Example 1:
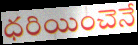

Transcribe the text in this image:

ధరియించెనే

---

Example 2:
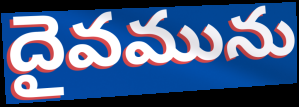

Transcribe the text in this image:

దైవమును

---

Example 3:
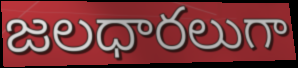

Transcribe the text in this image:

జలధారలుగా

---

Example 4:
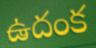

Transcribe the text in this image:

ఉదంక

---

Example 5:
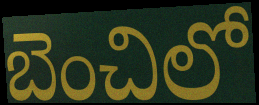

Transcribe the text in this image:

బెంచిలో